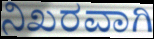
ನಿಖರವಾಗಿ